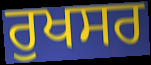
ਰੁਖਸਰ